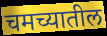
चमच्यातील